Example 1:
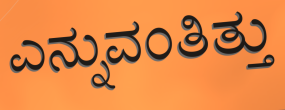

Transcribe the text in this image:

ಎನ್ನುವಂತಿತ್ತು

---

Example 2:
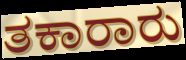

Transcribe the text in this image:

ತಕಾರಾರು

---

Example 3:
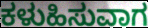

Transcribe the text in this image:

ಕಳುಹಿಸುವಾಗ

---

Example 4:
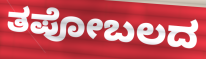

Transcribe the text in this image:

ತಪೋಬಲದ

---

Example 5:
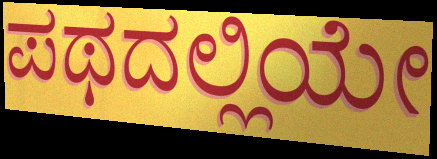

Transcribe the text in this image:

ಪಥದಲ್ಲಿಯೇ